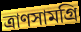
ত্রাণসামগ্রি